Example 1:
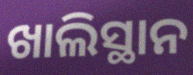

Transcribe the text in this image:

ଖାଲିସ୍ଥାନ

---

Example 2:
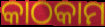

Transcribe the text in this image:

କାଠକାମ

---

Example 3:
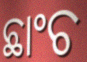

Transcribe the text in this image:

ଛାଂଚ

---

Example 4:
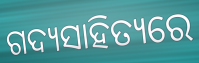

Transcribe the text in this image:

ଗଦ୍ୟସାହିତ୍ୟରେ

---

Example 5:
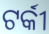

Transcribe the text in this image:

ଟର୍କୀ